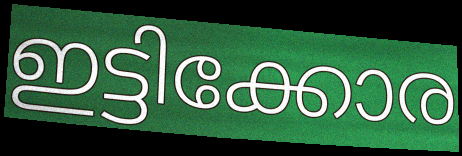
ഇട്ടിക്കോര